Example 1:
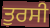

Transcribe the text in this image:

ਤੁਰਸੀ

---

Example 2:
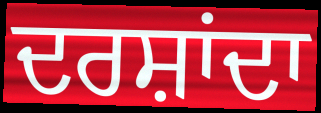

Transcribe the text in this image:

ਦਰਸ਼ਾਂਦਾ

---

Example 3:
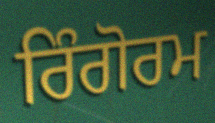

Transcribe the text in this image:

ਰਿੰਗੋਰਮ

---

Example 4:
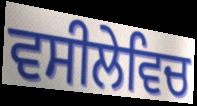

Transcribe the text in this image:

ਵਸੀਲੇਵਿਚ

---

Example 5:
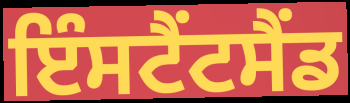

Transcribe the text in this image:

ਇੰਸਟੈਂਟਸੈਂਡ